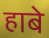
हाबे